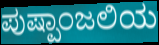
ಪುಷ್ಪಾಂಜಲಿಯ